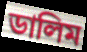
ডালিম